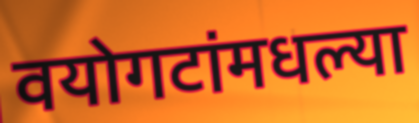
वयोगटांमधल्या